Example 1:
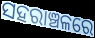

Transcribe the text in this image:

ସହରାଞ୍ଚଳରେ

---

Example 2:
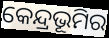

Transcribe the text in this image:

କେନ୍ଦ୍ରଭୂମିର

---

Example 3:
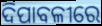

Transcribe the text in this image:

ଦିପାବଳୀରେ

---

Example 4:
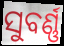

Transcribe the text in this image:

ସୁବର୍ଣ୍ଣ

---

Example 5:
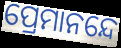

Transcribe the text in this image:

ପ୍ରେମାନନ୍ଦେ